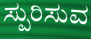
ಸ್ಪುರಿಸುವ